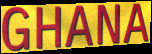
GHANA